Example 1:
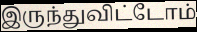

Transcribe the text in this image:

இருந்துவிட்டோம்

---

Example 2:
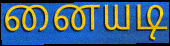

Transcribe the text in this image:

னையடி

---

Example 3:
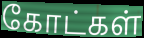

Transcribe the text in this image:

கோட்கள்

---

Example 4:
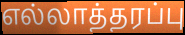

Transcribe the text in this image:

எல்லாத்தரப்பு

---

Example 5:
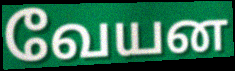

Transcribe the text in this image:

வேயன